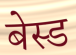
बेस्ड